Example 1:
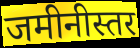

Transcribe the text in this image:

जमीनीस्तर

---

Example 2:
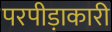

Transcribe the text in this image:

परपीड़ाकारी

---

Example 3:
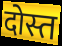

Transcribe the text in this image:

दोस्‍त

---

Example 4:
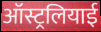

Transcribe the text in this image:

ऑस्ट्रलियाई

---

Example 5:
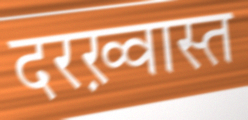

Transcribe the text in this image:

दरख़्वास्त